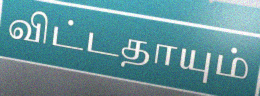
விட்டதாயும்